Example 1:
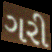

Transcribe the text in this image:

ગરી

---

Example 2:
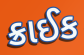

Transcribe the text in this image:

ક્રાઈક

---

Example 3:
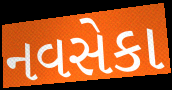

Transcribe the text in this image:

નવસેકા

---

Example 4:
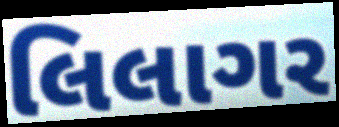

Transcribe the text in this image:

લિલાગર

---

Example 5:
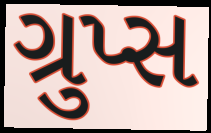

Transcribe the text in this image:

ગ્રુપ્સ